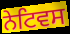
ਨੇਟਿਵਸ